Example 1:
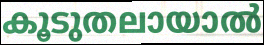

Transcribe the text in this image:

കൂടുതലായാൽ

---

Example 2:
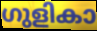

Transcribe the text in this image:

ഗുളികാ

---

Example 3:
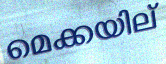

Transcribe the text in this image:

മെക്കയില്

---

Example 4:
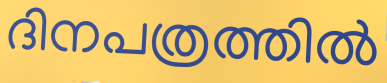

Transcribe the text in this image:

ദിനപത്രത്തിൽ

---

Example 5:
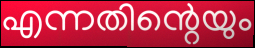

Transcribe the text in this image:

എന്നതിന്റെയും